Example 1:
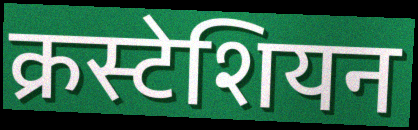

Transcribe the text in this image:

क्रस्टेशियन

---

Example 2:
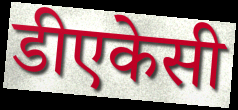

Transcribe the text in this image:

डीएकेसी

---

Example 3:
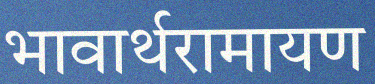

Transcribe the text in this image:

भावार्थरामायण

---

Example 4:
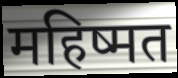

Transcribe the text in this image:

महिष्मत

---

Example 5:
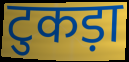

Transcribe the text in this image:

टुकड़ा